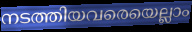
നടത്തിയവരെയെല്ലാം